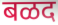
बळद